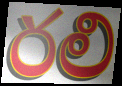
రలి